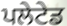
ਪਲੇਟੇਡ